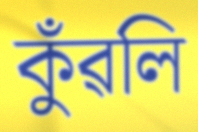
কুঁৱলি